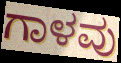
ಗಾಳವು